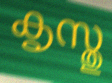
കൃസ്തു